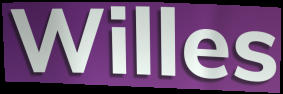
Willes